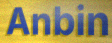
Anbin